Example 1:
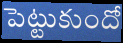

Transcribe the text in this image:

పెట్టుకుందో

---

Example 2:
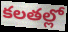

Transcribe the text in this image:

కలతల్లో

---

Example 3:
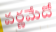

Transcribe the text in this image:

వర్ణమేదో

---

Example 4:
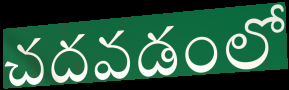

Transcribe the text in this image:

చదవడంలో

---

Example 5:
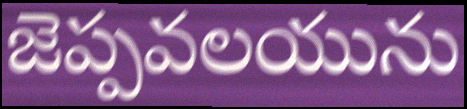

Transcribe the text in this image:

జెప్పవలయును